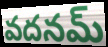
వదనమ్